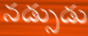
నడ్సుడు